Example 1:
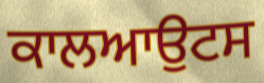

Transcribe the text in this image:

ਕਾਲਆਉਟਸ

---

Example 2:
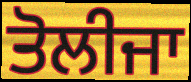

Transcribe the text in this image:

ਤੋਲੀਜਾ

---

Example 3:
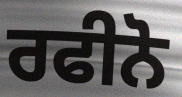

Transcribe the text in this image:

ਰਫੀਨੋ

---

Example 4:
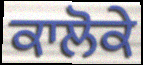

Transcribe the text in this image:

ਕਾਲੋਕੇ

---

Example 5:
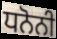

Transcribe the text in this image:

ਧਨੋਨੀ